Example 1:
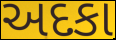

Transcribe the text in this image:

અદકા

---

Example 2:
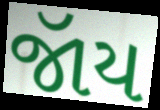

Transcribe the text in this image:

જૉય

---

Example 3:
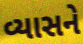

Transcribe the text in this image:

વ્યાસને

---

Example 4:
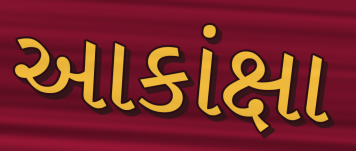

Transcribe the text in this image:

આકાંક્ષા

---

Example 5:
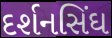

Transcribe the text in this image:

દર્શનસિંઘ